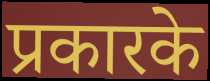
प्रकारके